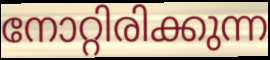
നോറ്റിരിക്കുന്ന